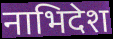
नाभिदेश